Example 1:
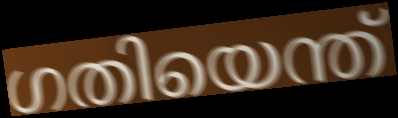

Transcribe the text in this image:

ഗതിയെന്ത്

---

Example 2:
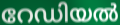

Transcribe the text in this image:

റേഡിയൽ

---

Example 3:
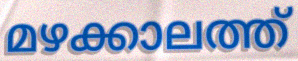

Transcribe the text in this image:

മഴക്കാലത്ത്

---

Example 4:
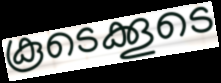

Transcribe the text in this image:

കൂടെക്കൂടെ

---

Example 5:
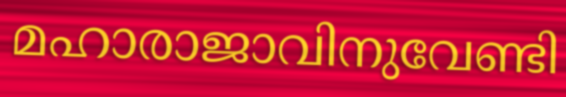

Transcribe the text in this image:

മഹാരാജാവിനുവേണ്ടി